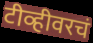
टीव्हीवरचं